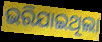
ଭରିଯାଇଥିଲା